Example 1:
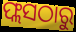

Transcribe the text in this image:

ଫ୍ଲସଠାରୁ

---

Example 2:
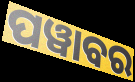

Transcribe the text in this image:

ପୱାବର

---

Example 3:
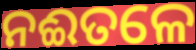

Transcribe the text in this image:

ନଈତଳେ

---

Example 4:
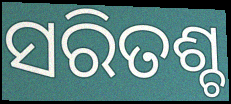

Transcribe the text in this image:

ସରିତଶ୍ଚ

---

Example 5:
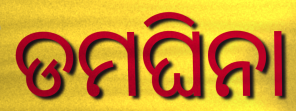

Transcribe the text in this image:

ଡମଘିନା